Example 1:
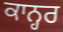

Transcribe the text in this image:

ਕਾਨ੍ਹਰ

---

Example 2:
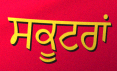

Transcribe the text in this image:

ਸਕੂਟਰਾਂ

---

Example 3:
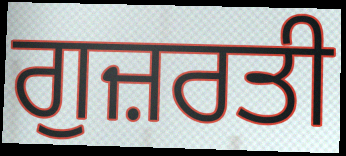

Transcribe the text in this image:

ਗੁਜ਼ਰਤੀ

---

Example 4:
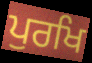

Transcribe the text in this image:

ਪੁਰਖਿ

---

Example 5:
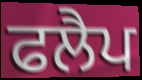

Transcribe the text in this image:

ਫਲੈਪ